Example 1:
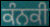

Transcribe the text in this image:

ਕੰਨਕੀ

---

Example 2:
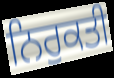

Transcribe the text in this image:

ਨਿਰੁਕਤੀ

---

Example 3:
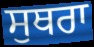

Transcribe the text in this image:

ਸੁਥਰਾ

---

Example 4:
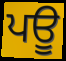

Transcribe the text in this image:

ਪਊ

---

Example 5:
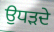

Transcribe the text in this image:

ਉਧੜਦੇ